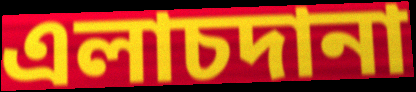
এলাচদানা